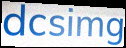
dcsimg